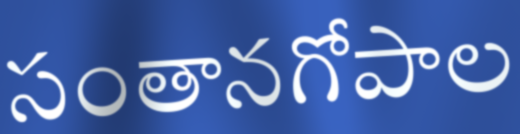
సంతానగోపాల